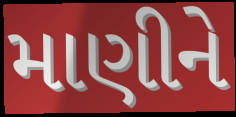
માણીને